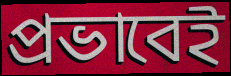
প্রভাবেই